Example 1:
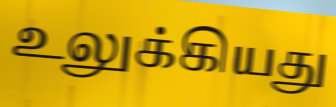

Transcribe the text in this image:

உலுக்கியது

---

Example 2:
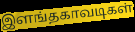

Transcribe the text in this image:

இளங்தகாவடிகள்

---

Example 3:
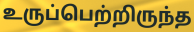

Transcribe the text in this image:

உருப்பெற்றிருந்த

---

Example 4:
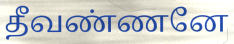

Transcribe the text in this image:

தீவண்ணனே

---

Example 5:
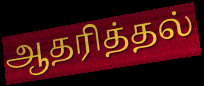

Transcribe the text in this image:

ஆதரித்தல்